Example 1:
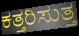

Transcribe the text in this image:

ಕತ್ತರಿಸುತ್ತ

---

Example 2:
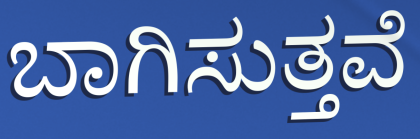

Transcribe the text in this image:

ಬಾಗಿಸುತ್ತವೆ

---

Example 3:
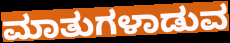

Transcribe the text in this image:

ಮಾತುಗಳಾಡುವ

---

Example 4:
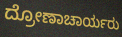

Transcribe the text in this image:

ದ್ರೋಣಾಚಾರ್ಯರು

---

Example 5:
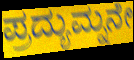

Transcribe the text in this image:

ಪ್ರದ್ಯುಮ್ನನೇ